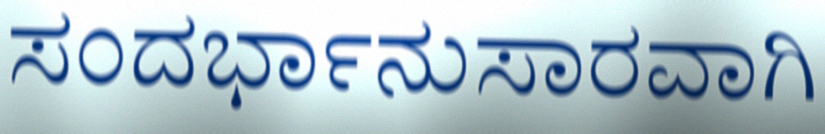
ಸಂದರ್ಭಾನುಸಾರವಾಗಿ